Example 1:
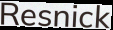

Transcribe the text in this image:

Resnick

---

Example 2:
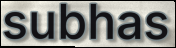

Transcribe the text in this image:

subhas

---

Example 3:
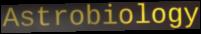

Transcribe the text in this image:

Astrobiology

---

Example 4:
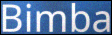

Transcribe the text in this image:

Bimba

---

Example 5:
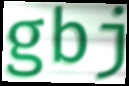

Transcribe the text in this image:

gbj